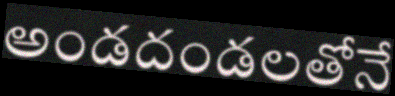
అండదండలతోనే